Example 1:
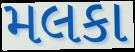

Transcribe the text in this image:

મલકા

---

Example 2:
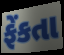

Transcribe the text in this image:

ફેંકતા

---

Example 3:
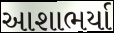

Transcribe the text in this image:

આશાભર્યા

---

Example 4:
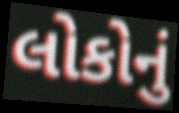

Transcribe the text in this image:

લોકોનું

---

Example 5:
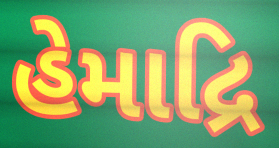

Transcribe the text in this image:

હેમાદ્રિ